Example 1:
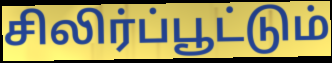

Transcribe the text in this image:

சிலிர்ப்பூட்டும்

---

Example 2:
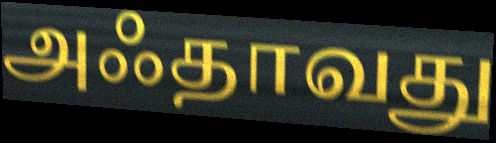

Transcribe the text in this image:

அஃதாவது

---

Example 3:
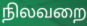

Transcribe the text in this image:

நிலவறை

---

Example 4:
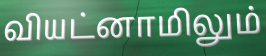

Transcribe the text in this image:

வியட்னாமிலும்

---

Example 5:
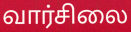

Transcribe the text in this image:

வார்சிலை